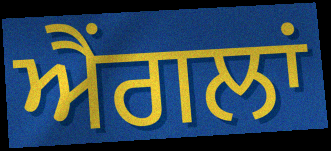
ਐਂਗਲਾਂ